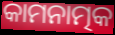
କାମନାତ୍ମକ